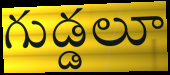
గుడ్డలూ